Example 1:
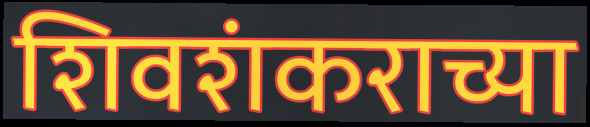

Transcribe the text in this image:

शिवशंकराच्या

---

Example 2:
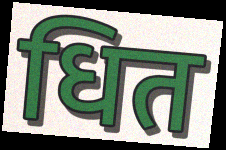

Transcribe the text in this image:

धित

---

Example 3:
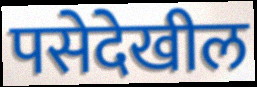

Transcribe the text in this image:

पसेदेखील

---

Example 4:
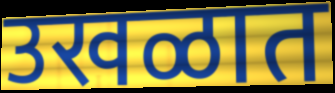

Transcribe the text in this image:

उखळात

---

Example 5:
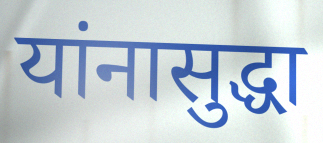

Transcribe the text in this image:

यांनासुद्धा